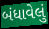
બંધાવેલું